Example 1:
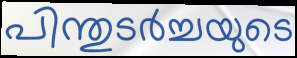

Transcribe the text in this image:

പിന്തുടർച്ചയുടെ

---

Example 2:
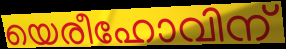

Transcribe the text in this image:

യെരീഹോവിന്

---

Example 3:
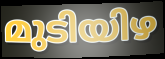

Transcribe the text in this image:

മുടിയിഴ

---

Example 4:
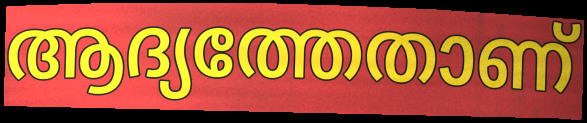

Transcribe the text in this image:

ആദ്യത്തേതാണ്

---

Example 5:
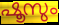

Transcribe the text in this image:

ഷൂസും